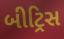
બીટ્રિસ